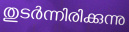
തുടർന്നിരിക്കുന്നു